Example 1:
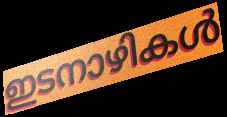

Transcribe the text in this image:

ഇടനാഴികൾ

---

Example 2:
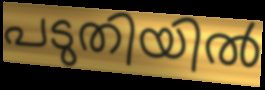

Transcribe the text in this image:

പടുതിയിൽ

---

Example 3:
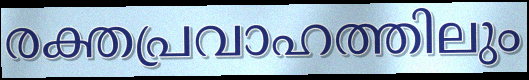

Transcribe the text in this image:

രക്തപ്രവാഹത്തിലും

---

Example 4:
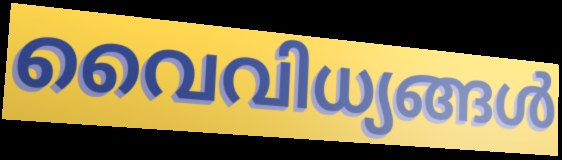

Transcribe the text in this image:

വൈവിധ്യങ്ങൾ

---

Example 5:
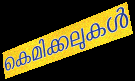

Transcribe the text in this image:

കെമിക്കലുകൾ